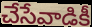
చేసేవాడికీ